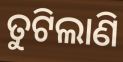
ତୁଟିଲାଣି